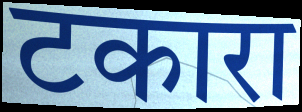
टकारा